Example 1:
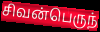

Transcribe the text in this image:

சிவன்பெருந்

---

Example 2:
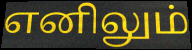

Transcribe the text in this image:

எனிலும்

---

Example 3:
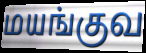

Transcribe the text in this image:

மயங்குவ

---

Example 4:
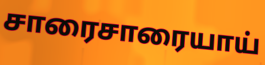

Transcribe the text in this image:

சாரைசாரையாய்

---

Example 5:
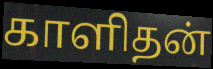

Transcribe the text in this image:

காளிதன்